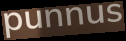
punnus